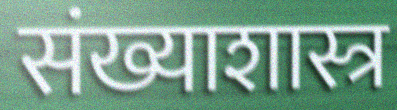
संख्याशास्त्र